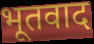
भूतवाद